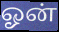
ஓன்